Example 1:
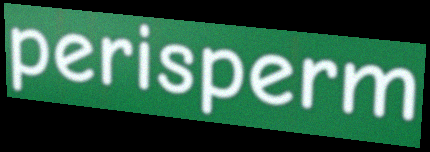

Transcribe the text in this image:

perisperm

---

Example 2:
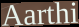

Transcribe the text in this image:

Aarthi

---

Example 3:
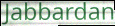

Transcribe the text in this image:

Jabbardan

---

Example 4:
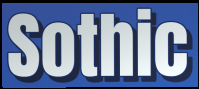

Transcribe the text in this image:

Sothic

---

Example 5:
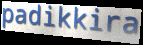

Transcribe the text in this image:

padikkira